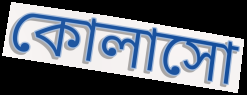
কোলাসো